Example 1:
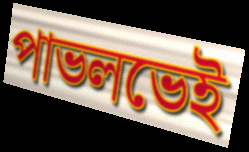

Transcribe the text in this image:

পাভলভেই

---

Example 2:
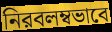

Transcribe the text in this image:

নিরবলম্বভাবে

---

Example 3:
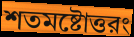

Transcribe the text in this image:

শতমষ্টোত্তরং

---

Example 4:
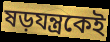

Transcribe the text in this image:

ষড়যন্ত্রকেই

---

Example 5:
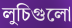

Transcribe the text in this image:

লুচিগুলো